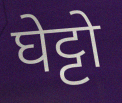
घेट्टो